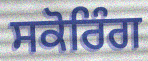
ਸਕੋਰਿੰਗ